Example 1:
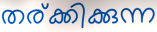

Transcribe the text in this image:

തര്ക്കിക്കുന്ന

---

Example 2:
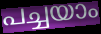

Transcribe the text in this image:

പച്ചയാം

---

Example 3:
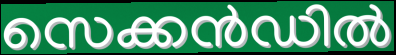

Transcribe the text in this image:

സെക്കൻഡിൽ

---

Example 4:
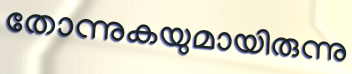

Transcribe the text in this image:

തോന്നുകയുമായിരുന്നു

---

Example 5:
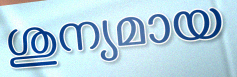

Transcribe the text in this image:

ശുന്യമായ